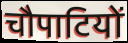
चौपाटियों